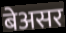
बेअसर